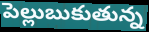
పెల్లుబుకుతున్న